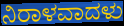
ನಿರಾಳವಾದಳು